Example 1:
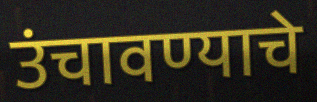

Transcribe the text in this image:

उंचावण्याचे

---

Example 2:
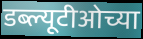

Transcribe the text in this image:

डब्ल्यूटीओच्या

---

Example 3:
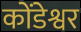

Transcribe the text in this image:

कोंडेश्वर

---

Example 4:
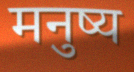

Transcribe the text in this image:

मनुष्य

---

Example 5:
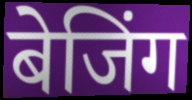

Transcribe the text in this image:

बेजिंग